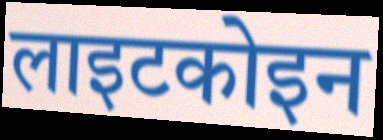
लाइटकोइन